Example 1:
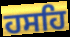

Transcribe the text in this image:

ਹਸਹਿ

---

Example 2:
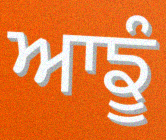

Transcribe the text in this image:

ਆਙੂੰ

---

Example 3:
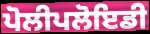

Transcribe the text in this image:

ਪੋਲੀਪਲੋਇਡੀ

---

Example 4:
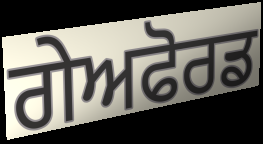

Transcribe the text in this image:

ਗੇਅਫੋਰਡ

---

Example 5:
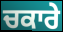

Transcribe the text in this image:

ਚਕਾਰੇ